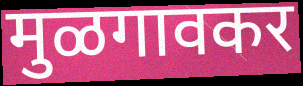
मुळगावकर